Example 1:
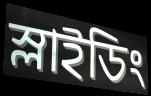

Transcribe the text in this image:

স্লাইডিং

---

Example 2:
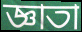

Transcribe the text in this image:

জ্ঞাতা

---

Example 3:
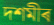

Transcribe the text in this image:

দশমীৰ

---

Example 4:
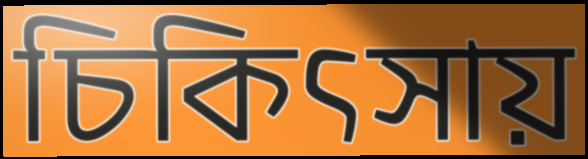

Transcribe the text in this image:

চিকিৎসায়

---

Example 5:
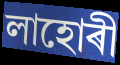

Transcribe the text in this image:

লাহোৰী